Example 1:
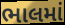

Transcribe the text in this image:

ભાલમાં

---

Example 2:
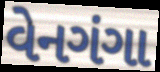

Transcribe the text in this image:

વેનગંગા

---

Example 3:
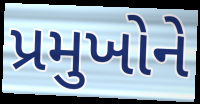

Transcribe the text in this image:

પ્રમુખોને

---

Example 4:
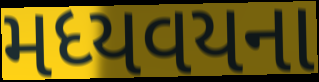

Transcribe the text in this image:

મધ્યવયના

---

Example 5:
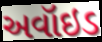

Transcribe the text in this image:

અવૉઇડ